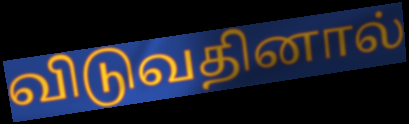
விடுவதினால்